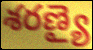
శరణ్యై